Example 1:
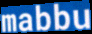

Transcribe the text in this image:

mabbu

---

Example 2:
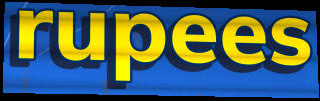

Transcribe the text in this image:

rupees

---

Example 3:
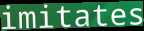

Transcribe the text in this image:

imitates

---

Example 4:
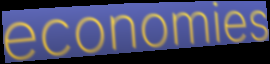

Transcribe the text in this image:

economies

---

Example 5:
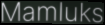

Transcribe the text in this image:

Mamluks